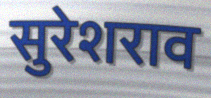
सुरेशराव